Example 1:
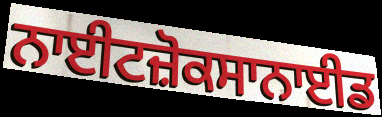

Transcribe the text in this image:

ਨਾਈਟਜ਼ੋਕਸਾਨਾਈਡ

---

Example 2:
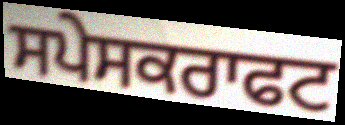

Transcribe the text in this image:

ਸਪੇਸਕਰਾਫਟ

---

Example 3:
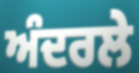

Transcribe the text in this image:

ਅੰਦਰਲੇ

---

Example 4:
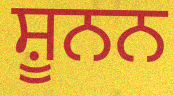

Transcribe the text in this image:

ਸ਼ੂਨਨ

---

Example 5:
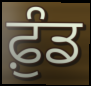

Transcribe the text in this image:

ਫ਼ੁੰਡ